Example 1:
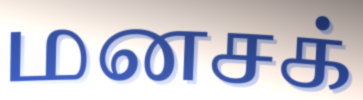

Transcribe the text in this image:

மனசக்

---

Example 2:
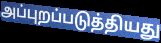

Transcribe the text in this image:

அப்புறப்படுத்தியது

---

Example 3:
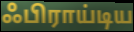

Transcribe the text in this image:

ஃபிராய்டிய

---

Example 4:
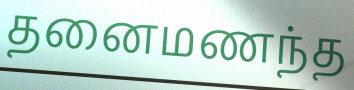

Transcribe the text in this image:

தனைமணந்த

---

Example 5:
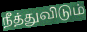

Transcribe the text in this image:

நீத்துவிடும்